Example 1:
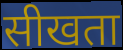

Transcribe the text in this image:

सीखता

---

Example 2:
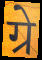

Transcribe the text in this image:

ग्रे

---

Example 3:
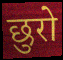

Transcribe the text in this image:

छुरो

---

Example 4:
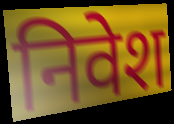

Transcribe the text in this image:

निवेश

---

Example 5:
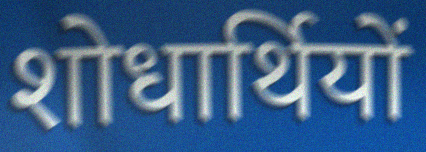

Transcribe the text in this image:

शोधार्थियों